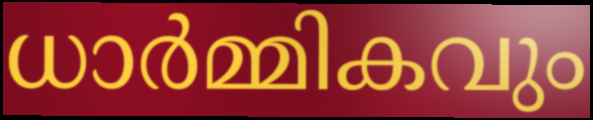
ധാർമ്മികവും